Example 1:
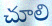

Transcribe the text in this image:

చూలి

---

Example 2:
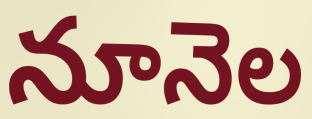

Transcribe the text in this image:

నూనెల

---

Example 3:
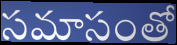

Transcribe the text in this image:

సమాసంతో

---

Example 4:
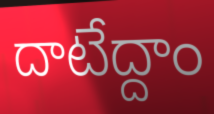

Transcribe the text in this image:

దాటేద్దాం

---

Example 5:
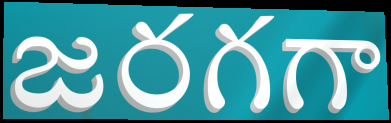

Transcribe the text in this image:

జరగగా